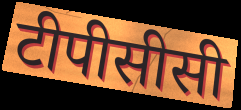
टीपीसीसी